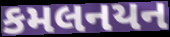
કમલનયન